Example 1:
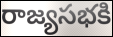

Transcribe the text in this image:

రాజ్యసభకి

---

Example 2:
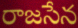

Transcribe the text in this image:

రాజసేన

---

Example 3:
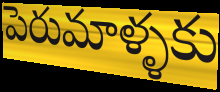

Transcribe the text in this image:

పెరుమాళ్ళకు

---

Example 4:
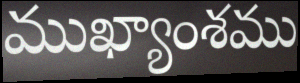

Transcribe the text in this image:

ముఖ్యాంశము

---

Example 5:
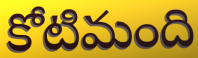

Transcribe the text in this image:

కోటిమంది